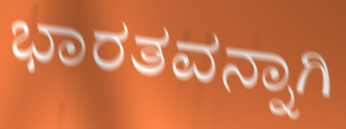
ಭಾರತವನ್ನಾಗಿ